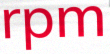
rpm